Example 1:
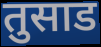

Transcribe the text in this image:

तुसाड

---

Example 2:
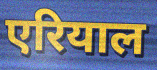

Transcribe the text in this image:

एरियाल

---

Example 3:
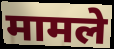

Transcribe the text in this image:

मामले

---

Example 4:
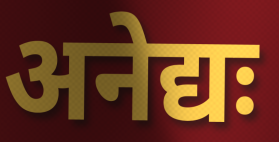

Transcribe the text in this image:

अनेद्यः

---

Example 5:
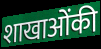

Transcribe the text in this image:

शाखाओंकी